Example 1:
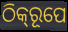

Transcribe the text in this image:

ଠିକ୍‍ରୂପେ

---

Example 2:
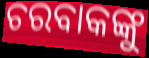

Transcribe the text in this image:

ଚରବାକଙ୍କୁ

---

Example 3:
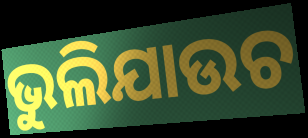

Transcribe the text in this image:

ଭୁଲିଯାଉଚ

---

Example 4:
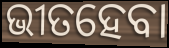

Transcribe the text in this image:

ଭୀତହେବା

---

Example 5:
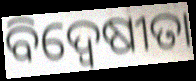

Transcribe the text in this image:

ବିଦ୍ଵେଷୀତା